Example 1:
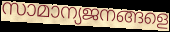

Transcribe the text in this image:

സാമാന്യജനങ്ങളെ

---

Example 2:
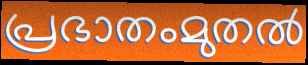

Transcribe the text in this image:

പ്രഭാതംമുതൽ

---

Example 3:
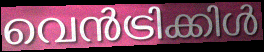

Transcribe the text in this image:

വെൻട്രിക്കിൾ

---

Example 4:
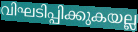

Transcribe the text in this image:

വിഘടിപ്പിക്കുകയല്ല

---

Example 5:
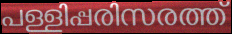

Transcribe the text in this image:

പള്ളിപ്പരിസരത്ത്